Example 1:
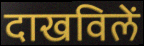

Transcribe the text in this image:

दाखविलें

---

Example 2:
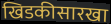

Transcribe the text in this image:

खिडकीसारखा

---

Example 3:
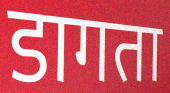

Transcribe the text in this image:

डागता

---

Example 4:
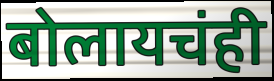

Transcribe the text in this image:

बोलायचंही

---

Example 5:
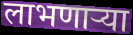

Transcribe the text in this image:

लाभणार्‍या